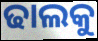
ଢାଲକୁ